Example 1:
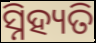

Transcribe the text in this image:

ସ୍ନିହ୍ୟତି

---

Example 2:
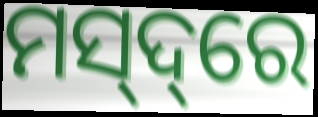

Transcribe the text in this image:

ମସ୍‌ଦ୍‌ରେ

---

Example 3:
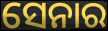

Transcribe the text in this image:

ସେନାର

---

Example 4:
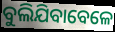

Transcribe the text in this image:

ବୁଲିଯିବାବେଳେ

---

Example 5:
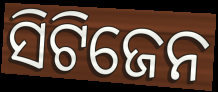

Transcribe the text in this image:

ସିଟିଜେନ